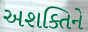
અશક્તિને